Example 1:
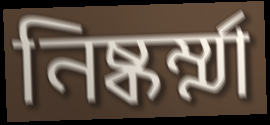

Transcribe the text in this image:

নিষ্কর্ম্মা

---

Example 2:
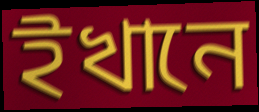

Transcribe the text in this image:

ইখানে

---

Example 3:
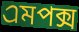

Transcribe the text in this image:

এমপক্স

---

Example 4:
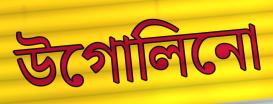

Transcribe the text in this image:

উগোলিনো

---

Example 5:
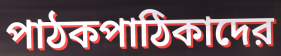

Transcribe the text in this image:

পাঠকপাঠিকাদের